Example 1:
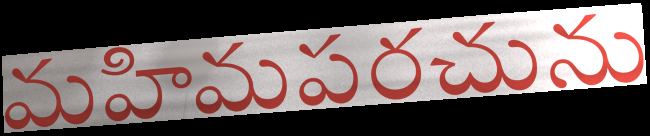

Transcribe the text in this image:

మహిమపరచును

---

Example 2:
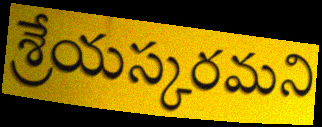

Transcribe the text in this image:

శ్రేయస్కరమని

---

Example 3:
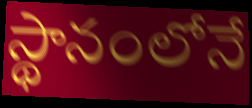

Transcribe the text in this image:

స్థానంలోనే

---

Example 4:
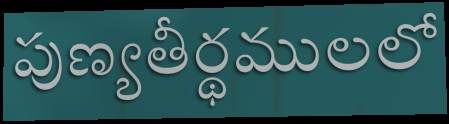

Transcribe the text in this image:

పుణ్యతీర్థములలో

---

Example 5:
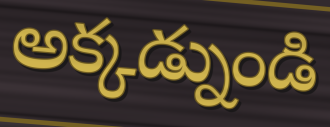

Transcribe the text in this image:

అక్కడ్నుండి